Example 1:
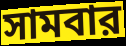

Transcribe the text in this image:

সামবার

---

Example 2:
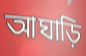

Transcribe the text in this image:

আঘাড়ি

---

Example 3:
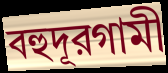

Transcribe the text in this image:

বহুদূরগামী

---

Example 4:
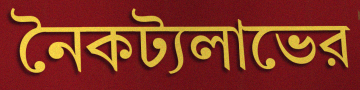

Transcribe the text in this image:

নৈকট্যলাভের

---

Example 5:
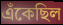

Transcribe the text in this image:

এঁকেছিল